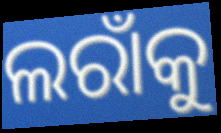
ଲରାଁକୁ